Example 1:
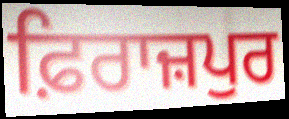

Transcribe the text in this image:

ਫ਼ਿਰਾਜ਼ਪੁਰ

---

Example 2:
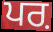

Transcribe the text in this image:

ਪਰ਼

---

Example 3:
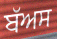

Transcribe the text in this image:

ਬੱਅਸ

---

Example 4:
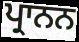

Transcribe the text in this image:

ਪ੍ਰਾਨਨ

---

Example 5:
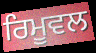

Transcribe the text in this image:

ਰਿਮੂਵਲ